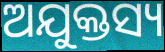
ଅଯୁକ୍ତସ୍ୟ